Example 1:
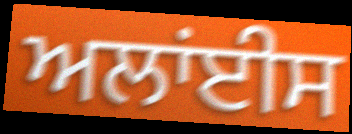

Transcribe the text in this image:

ਅਲਾਂਈਸ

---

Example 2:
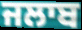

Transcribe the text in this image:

ਜਲਾਬ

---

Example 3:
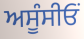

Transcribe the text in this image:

ਅਸੂੰਸੀਓਂ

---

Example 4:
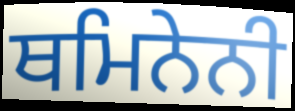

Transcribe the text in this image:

ਥਮਿਨੇਨੀ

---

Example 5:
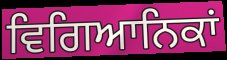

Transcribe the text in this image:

ਵਿਗਿਆਨਿਕਾਂ